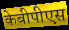
केबीपीएस